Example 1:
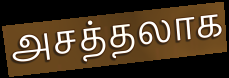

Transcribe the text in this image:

அசத்தலாக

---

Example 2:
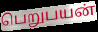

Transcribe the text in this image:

பெறுபயன்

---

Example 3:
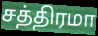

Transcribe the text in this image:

சத்திரமா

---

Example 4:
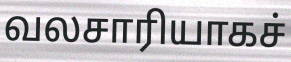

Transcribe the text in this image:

வலசாரியாகச்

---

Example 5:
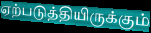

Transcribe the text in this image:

ஏற்படுத்தியிருக்கும்